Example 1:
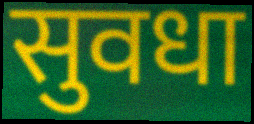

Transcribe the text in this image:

सुवधा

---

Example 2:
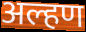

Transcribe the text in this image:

अल्हण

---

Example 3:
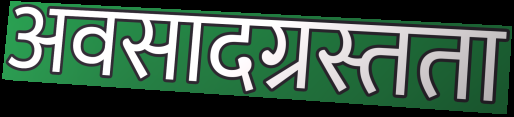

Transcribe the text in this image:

अवसादग्रस्तता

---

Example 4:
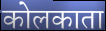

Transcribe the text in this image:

कोलकाता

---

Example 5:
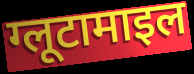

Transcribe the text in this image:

ग्लूटामाइल